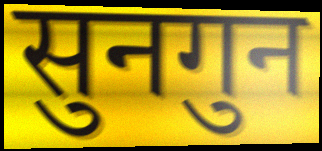
सुनगुन